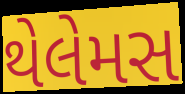
થેલેમસ